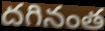
దగినంత